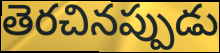
తెరచినప్పుడు